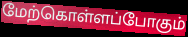
மேற்கொள்ளப்போகும்